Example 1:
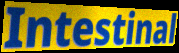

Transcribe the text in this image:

Intestinal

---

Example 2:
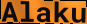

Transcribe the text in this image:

Alaku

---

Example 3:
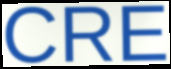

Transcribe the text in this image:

CRE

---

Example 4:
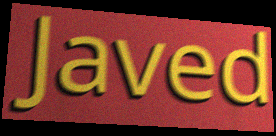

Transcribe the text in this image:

Javed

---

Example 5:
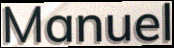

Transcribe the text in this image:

Manuel